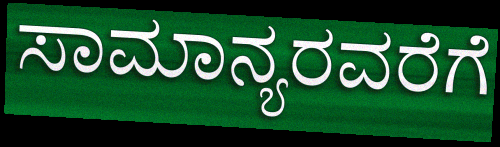
ಸಾಮಾನ್ಯರವರೆಗೆ